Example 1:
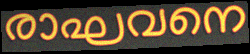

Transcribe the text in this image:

രാഘവനെ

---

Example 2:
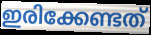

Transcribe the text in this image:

ഇരിക്കേണ്ടത്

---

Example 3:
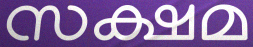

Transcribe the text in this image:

സക്ഷമ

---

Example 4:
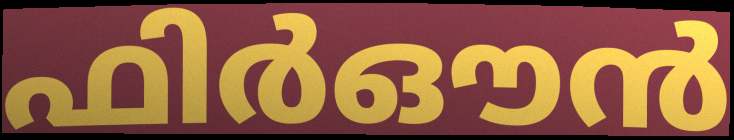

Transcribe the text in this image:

ഫിർഔൻ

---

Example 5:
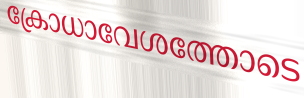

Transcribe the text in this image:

ക്രോധാവേശത്തോടെ